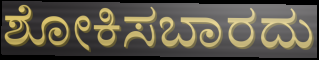
ಶೋಕಿಸಬಾರದು